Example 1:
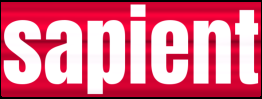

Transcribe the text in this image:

sapient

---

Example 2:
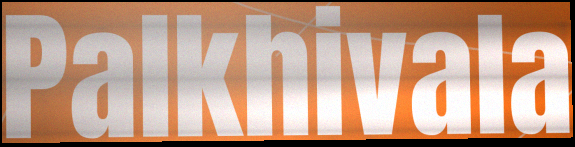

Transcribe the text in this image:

Palkhivala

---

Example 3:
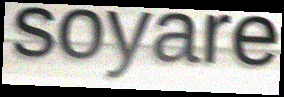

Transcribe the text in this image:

soyare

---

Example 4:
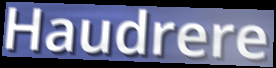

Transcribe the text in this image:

Haudrere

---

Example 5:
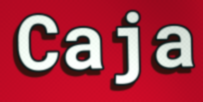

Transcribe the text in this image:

Caja